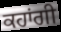
ਕਹਾਂਗੀ